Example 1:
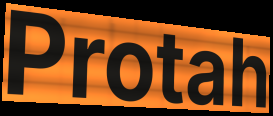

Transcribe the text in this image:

Protah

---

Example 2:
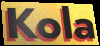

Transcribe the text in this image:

Kola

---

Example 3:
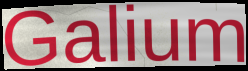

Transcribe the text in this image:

Galium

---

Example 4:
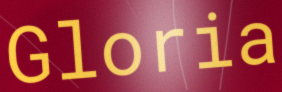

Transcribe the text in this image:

Gloria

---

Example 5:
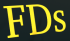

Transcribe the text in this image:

FDs